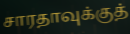
சாரதாவுக்குத்